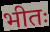
भीतः